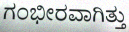
ಗಂಭೀರವಾಗಿತ್ತು